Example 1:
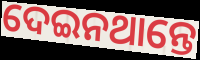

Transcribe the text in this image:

ଦେଇନଥାନ୍ତେ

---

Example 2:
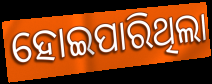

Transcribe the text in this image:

ହୋଇପାରିଥିଲା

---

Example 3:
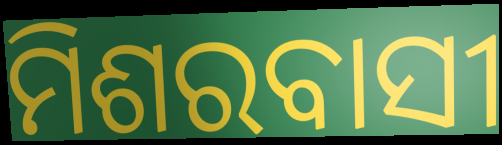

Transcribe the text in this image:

ମିଶରବାସୀ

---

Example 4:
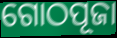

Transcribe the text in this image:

ଗୋଠପୂଜା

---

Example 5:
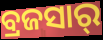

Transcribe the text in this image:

ବ୍ରଜସାର୍